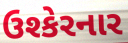
ઉશ્કેરનાર